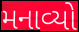
મનાવ્યો